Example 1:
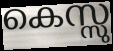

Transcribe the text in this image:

കെസ്സു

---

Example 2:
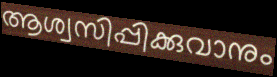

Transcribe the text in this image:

ആശ്വസിപ്പിക്കുവാനും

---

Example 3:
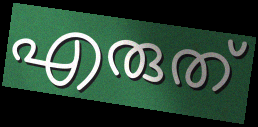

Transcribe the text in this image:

എരുത്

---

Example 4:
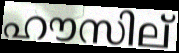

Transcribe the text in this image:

ഹൗസില്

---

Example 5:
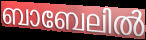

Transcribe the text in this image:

ബാബേലിൽ